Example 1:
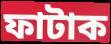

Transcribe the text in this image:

ফাটাক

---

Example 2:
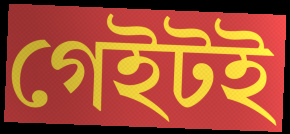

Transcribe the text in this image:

গেইটই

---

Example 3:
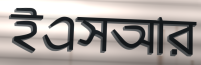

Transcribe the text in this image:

ইএসআর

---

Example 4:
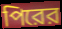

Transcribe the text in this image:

পিরের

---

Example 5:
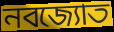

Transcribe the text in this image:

নবজ্যোত